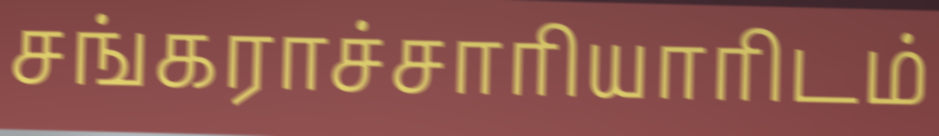
சங்கராச்சாரியாரிடம்